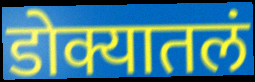
डोक्यातलं